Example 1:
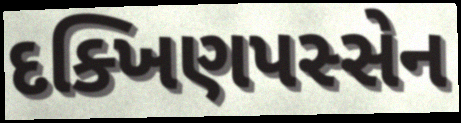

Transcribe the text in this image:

દક્ખિણપસ્સેન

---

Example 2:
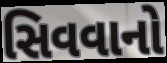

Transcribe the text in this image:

સિવવાનો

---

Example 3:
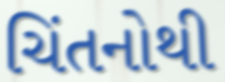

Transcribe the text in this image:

ચિંતનોથી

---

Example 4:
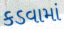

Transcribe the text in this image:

કડવામાં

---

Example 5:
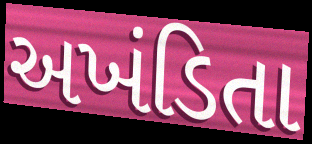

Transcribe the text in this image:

અખંડિતા